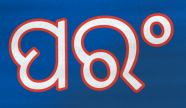
ପରଂ